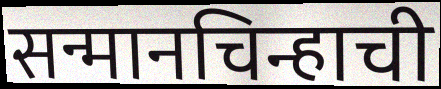
सन्मानचिन्हाची